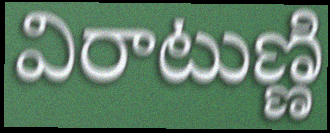
విరాటుణ్ణి